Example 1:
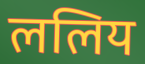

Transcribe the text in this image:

ललिय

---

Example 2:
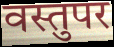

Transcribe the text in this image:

वस्तुपर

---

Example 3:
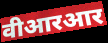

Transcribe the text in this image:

वीआरआर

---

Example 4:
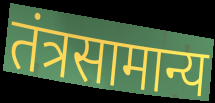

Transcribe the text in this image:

तंत्रसामान्य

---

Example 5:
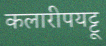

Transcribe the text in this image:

कलारीपयट्टू